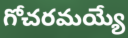
గోచరమయ్యే